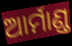
ଆର୍ମାଣ୍ଡ